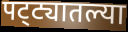
पट्ट्यातल्या